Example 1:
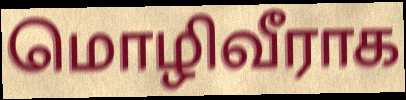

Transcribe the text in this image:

மொழிவீராக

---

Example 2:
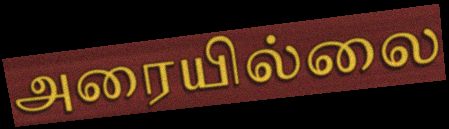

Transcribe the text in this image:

அரையில்லை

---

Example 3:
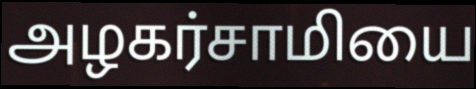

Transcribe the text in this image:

அழகர்சாமியை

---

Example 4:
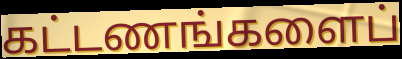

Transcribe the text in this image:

கட்டணங்களைப்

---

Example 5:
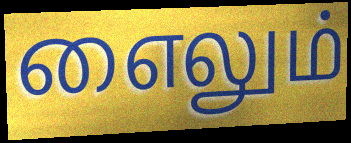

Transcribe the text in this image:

எைலும்